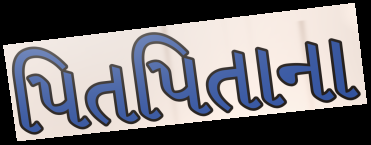
પિતપિતાના